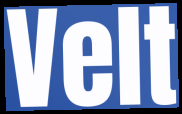
Velt